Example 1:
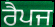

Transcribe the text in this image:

ਰੈਪਜ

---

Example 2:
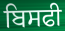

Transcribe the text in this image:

ਬਿਸਫੀ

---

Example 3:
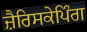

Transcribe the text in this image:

ਜ਼ੈਰਿਸਕੇਪਿੰਗ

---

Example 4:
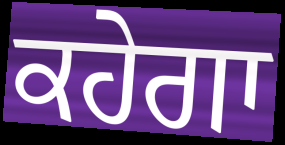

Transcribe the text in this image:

ਕਹੇਗਾ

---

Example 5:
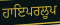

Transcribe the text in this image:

ਹਾਇਪਰਲੂਪ